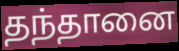
தந்தானை